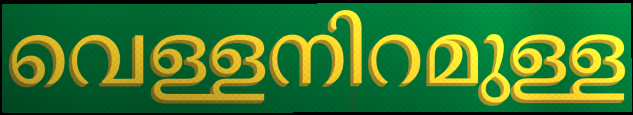
വെള്ളനിറമുള്ള